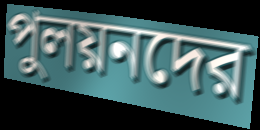
পুলয়নদের